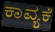
ಕಾವ್ಯಕೆ